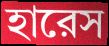
হারেস